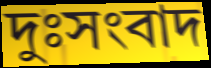
দুঃসংবাদ